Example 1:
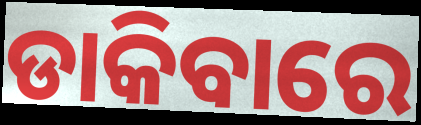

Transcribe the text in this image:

ଡାକିବାରେ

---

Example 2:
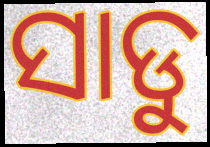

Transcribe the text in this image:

ସାଡୁ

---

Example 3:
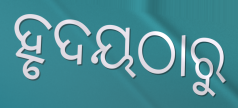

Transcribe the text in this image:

ହୃଦୟଠାରୁ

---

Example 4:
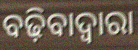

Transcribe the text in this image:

ବଢ଼ିବାଦ୍ୱାରା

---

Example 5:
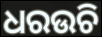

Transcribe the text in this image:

ଧରଉଚି